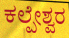
ಕಲ್ಪೇಶ್ವರ